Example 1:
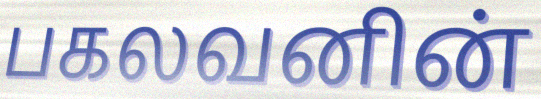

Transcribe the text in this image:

பகலவனின்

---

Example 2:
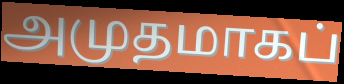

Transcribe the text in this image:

அமுதமாகப்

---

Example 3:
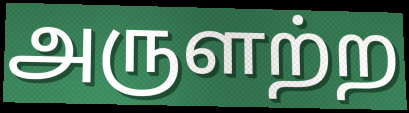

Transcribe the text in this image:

அருளற்ற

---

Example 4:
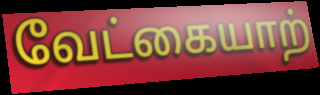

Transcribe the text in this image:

வேட்கையாற்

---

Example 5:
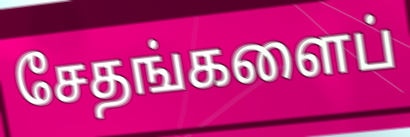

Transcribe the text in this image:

சேதங்களைப்